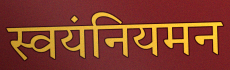
स्वयंनियमन